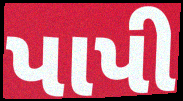
પાપી